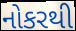
નોકરથી